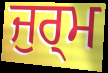
ਜੁਰ੍ਮ